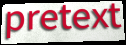
pretext